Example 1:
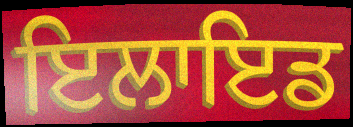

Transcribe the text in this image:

ਇਲਾਇਡ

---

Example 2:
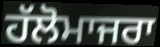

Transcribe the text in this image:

ਹੱਲੋਮਾਜਰਾ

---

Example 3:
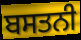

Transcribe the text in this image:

ਬਸਤਨੀ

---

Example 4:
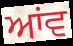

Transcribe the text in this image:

ਆਂਵ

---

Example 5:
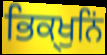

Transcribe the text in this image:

ਭਿਕ੍ਖੁਨਿਂ